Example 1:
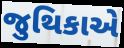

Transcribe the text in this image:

જુથિકાએ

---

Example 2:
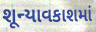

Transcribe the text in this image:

શૂન્યાવકાશમાં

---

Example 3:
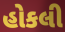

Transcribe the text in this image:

હોકલી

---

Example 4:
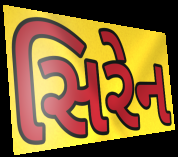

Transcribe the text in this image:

સિરેન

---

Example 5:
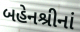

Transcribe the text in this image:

બહેનશ્રીનાં